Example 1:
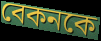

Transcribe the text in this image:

বেকনকে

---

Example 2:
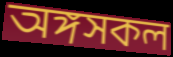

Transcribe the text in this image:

অঙ্গসকল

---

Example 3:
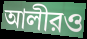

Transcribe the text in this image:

আলীরও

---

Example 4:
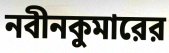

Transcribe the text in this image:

নবীনকুমারের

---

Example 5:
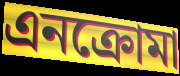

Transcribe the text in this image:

এনক্রোমা